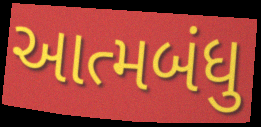
આત્મબંધુ